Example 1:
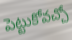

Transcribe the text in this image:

పెట్టుకోవచ్చో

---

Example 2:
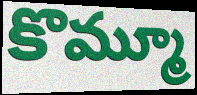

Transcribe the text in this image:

కొమ్మూ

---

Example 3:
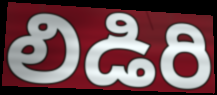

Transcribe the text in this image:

లిడిరి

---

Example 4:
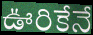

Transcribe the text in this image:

ఊరికేనే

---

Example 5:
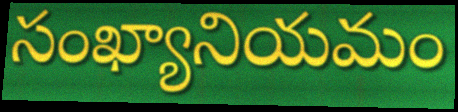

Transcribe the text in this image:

సంఖ్యానియమం